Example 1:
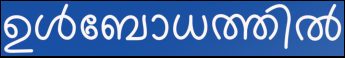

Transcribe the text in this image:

ഉൾബോധത്തിൽ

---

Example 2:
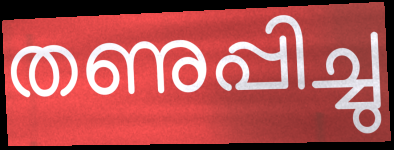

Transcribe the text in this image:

തണുപ്പിച്ചു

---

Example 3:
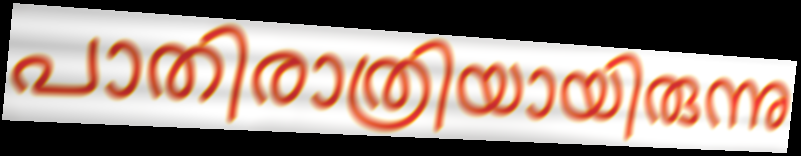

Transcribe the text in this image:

പാതിരാത്രിയായിരുന്നു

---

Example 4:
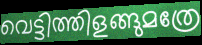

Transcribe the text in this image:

വെട്ടിത്തിളങ്ങുമത്രേ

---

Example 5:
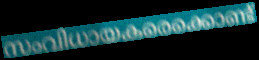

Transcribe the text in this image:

സംവിധായകരെക്കൊണ്ട്